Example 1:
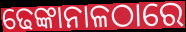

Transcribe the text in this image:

ଢେଙ୍କାନାଳଠାରେ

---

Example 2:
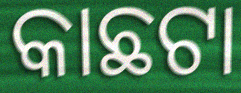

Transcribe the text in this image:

କାଛଟା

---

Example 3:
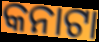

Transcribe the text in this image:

କନାଟା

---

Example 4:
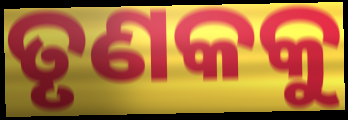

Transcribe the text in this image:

ତୃଣକକୁ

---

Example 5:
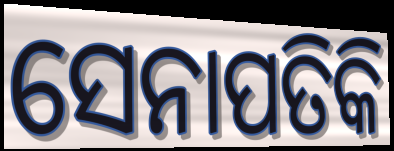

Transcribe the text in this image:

ସେନାପତିକି